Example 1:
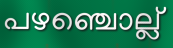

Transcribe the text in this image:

പഴഞ്ചൊല്ല്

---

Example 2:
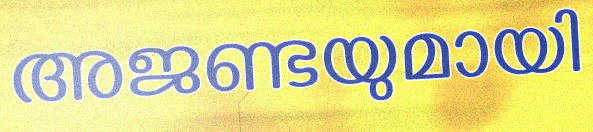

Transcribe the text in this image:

അജണ്ടയുമായി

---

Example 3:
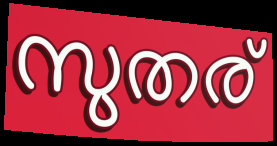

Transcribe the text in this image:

സുതര്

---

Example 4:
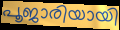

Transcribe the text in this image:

പൂജാരിയായി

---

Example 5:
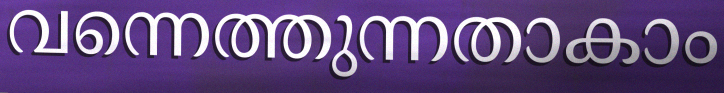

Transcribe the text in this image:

വന്നെത്തുന്നതാകാം